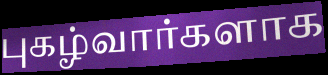
புகழ்வார்களாக